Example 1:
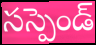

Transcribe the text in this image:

సస్పెండ్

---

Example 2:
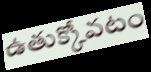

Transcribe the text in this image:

ఉతుక్కోవటం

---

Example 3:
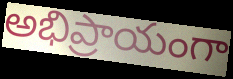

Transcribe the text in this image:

అభిప్రాయంగా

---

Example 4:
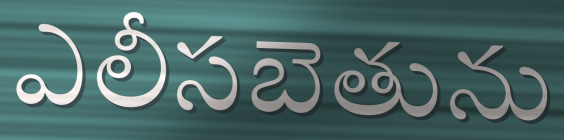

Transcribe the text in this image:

ఎలీసబెతును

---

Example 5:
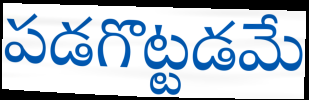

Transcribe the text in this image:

పడగొట్టడమే